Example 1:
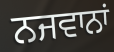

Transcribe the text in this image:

ਨਜਵਾਨਾਂ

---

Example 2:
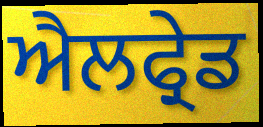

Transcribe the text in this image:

ਐਲਫ੍ਰੇਡ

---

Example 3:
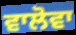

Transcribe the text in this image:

ਵਾਲੋਵਾ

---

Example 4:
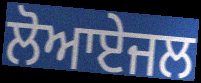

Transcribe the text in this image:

ਲੋਆਏਜਲ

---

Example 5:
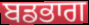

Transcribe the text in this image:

ਬਡਭਾਗ